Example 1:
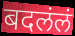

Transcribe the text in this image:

बदलंलं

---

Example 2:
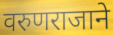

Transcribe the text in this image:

वरुणराजाने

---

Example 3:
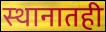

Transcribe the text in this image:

स्थानातही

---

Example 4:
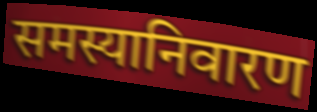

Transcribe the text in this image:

समस्यानिवारण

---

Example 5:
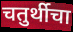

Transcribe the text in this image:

चतुर्थीचा